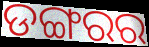
ଡଙ୍ଗରର